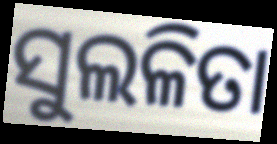
ସୁଲଳିତା